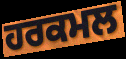
ਹਰਕਮਲ